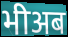
भीअब